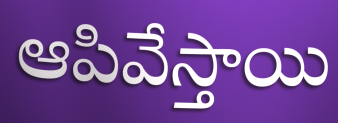
ఆపివేస్తాయి